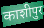
काशीपुर